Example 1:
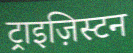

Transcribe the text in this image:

ट्राइज़िस्टन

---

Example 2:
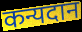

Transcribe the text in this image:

कन्यदान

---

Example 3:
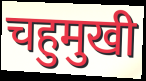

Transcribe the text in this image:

चहुमुखी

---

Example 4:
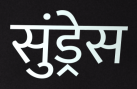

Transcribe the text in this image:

सुंड्रेस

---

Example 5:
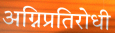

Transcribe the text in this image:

अग्निप्रतिरोधी